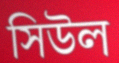
সিউল